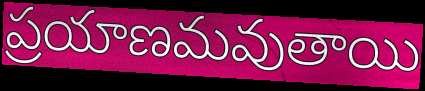
ప్రయాణమవుతాయి